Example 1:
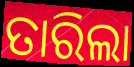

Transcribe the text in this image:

ତାରିଲା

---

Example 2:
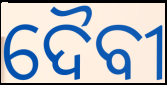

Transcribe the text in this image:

ଦୈବୀ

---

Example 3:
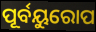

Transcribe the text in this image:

ପୂର୍ବୟୁରୋପ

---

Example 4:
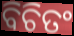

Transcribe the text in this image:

ବିଚିତଂ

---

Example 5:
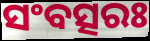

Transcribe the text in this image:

ସଂବତ୍ସରଃ